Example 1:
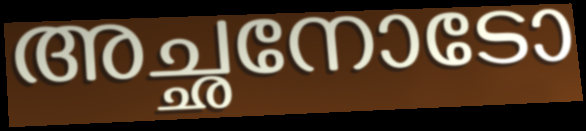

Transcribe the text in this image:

അച്ഛനോടോ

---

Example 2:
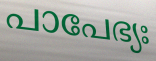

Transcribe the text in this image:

പാപേഭ്യഃ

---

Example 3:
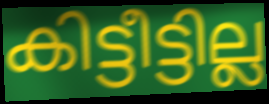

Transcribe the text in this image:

കിട്ടീട്ടില്ല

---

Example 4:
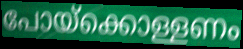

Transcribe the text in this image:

പോയ്ക്കൊള്ളണം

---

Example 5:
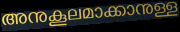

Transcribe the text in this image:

അനുകൂലമാക്കാനുള്ള